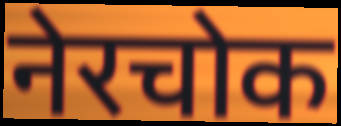
नेरचोक